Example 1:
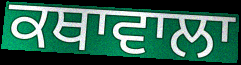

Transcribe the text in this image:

ਕਥਾਵਾਲਾ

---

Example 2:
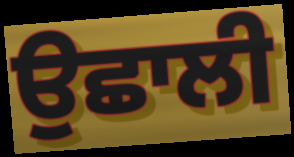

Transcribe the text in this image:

ਉਛਾਲੀ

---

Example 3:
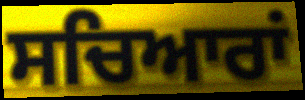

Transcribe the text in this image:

ਸਚਿਆਰਾਂ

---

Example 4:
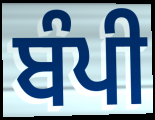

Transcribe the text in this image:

ਬੰਪੀ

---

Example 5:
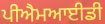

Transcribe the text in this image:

ਪੀਐਮਆਈਡੀ